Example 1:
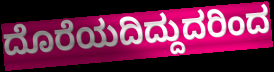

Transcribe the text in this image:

ದೊರೆಯದಿದ್ದುದರಿಂದ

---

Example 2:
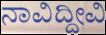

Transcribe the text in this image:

ನಾವಿದ್ದೀವಿ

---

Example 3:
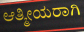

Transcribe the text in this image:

ಆತ್ಮೀಯರಾಗಿ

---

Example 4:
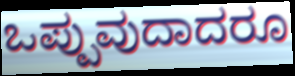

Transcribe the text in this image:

ಒಪ್ಪುವುದಾದರೂ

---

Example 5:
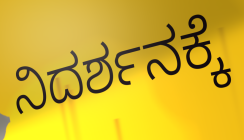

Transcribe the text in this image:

ನಿದರ್ಶನಕ್ಕೆ